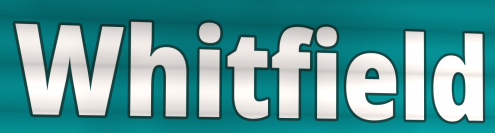
Whitfield